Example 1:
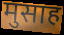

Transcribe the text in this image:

मुसाह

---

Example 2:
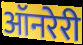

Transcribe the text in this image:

ऑनरेरी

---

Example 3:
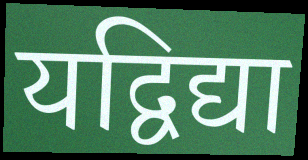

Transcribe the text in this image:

यद्विद्या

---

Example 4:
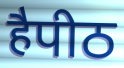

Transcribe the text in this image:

हैपीठ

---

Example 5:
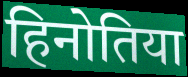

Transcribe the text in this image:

हिनोतिया